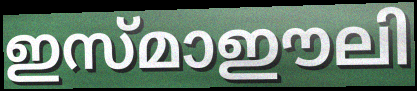
ഇസ്മാഈലി